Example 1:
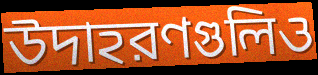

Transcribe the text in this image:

উদাহরণগুলিও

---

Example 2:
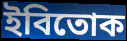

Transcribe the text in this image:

ইবিতোক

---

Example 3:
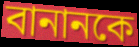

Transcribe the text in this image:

বানানকে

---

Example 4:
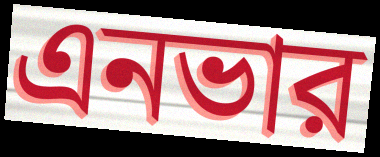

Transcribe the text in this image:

এনভার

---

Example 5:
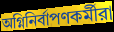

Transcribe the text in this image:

অগ্নিনির্বাপণকর্মীরা